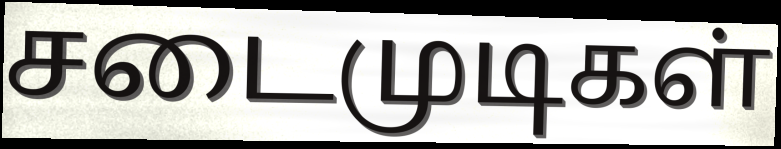
சடைமுடிகள்